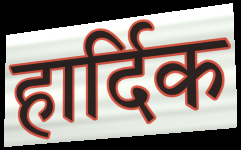
हार्दिक